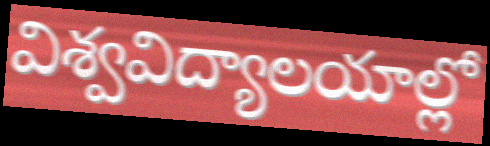
విశ్వవిద్యాలయాల్లో